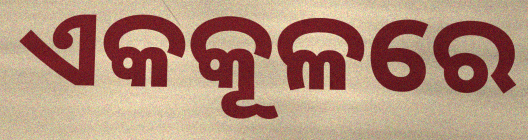
ଏକକୂଳରେ